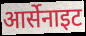
आर्सेनाइट